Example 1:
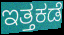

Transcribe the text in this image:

ಇತ್ತಕಡೆ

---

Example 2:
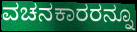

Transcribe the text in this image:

ವಚನಕಾರರನ್ನೂ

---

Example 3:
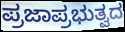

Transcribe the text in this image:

ಪ್ರಜಾಪ್ರಭುತ್ವದ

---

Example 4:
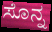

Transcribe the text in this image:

ಸೊನ್ನ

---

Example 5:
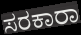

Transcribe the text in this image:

ಸರಕಾರಾ